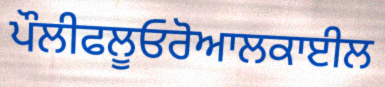
ਪੌਲੀਫਲੂਓਰੋਆਲਕਾਈਲ